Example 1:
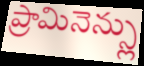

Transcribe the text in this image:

ప్రామినెన్స్లు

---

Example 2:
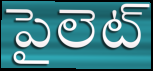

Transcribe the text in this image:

పైలెట్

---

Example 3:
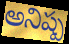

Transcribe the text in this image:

అనిష్ప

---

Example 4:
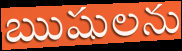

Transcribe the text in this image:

ఋషులను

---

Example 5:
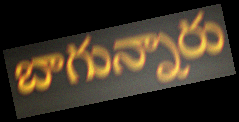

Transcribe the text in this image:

బాగున్నారు